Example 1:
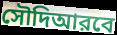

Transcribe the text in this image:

সৌদিআরবে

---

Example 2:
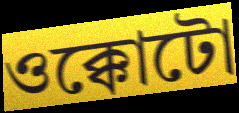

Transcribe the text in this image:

ওক্কোটো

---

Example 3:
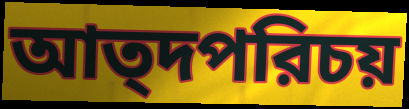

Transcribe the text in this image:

আত্দপরিচয়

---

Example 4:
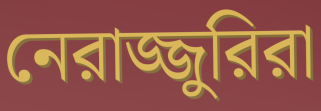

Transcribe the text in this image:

নেরাজ্জুরিরা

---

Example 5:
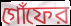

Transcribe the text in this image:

গোঁফের